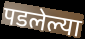
पडलेल्या